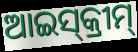
ଆଇସ୍‌କ୍ରୀମ୍